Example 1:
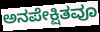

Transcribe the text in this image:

ಅನಪೇಕ್ಷಿತವೂ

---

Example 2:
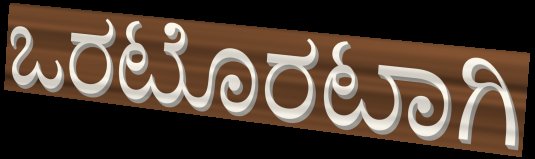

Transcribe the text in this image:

ಒರಟೊರಟಾಗಿ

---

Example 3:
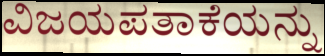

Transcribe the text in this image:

ವಿಜಯಪತಾಕೆಯನ್ನು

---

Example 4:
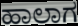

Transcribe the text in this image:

ಹಾಲಾಗ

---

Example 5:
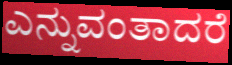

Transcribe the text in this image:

ಎನ್ನುವಂತಾದರೆ